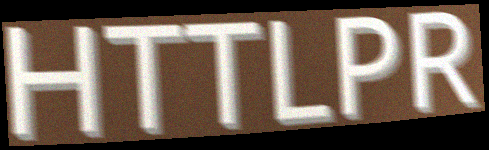
HTTLPR